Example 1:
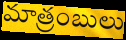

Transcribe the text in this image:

మాత్రంబులు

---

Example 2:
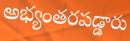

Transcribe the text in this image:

అభ్యంతరపడ్డారు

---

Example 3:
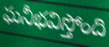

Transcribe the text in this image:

ఘనీభవిస్తోంది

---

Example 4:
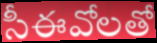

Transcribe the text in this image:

సీఈవోలతో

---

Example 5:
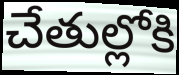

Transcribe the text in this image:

చేతుల్లోకి